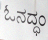
ಓನದ್ಧಂ